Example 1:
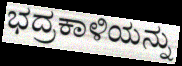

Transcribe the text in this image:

ಭದ್ರಕಾಳಿಯನ್ನು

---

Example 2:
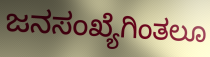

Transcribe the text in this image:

ಜನಸಂಖ್ಯೆಗಿಂತಲೂ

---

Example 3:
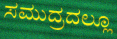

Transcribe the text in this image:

ಸಮುದ್ರದಲ್ಲೂ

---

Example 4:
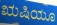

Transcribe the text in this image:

ಋಷಿಯೂ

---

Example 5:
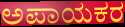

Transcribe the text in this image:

ಅಪಾಯಕರ